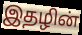
இதழின்